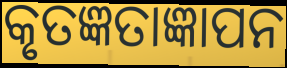
କୃତଜ୍ଞତାଜ୍ଞାପନ